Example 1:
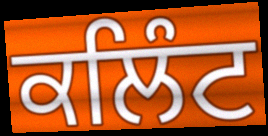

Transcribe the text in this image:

ਕਲਿੰਟ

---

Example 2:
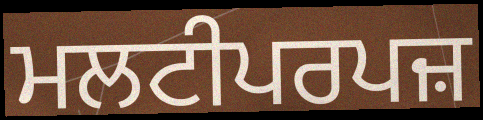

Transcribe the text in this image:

ਮਲਟੀਪਰਪਜ਼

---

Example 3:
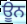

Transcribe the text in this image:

ਊਨ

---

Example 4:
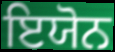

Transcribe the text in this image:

ਇਯੋਨ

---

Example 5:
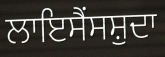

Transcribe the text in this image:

ਲਾਇਸੈਂਸਸ਼ੁਦਾ